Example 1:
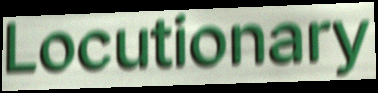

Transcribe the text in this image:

Locutionary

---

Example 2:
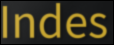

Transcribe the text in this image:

Indes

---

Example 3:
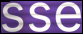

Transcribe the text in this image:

sse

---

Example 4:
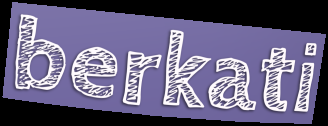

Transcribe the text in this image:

berkati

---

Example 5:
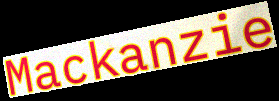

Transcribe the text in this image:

Mackanzie